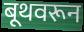
बूथवरून